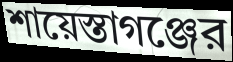
শায়েস্তাগঞ্জের